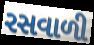
રસવાળી